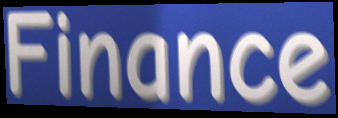
Finance